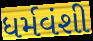
ધર્મવંશી